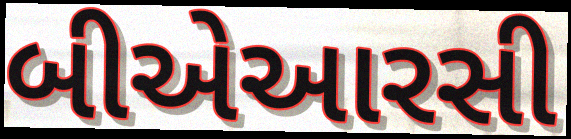
બીએઆરસી